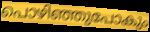
പൊഴിഞ്ഞുപോകും